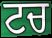
ਟਚ